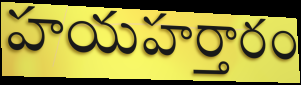
హయహర్తారం